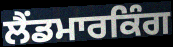
ਲੈਂਡਮਾਰਕਿੰਗ